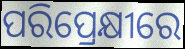
ପରିପ୍ରେକ୍ଷୀରେ